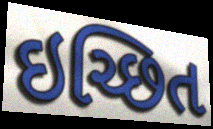
ઇચ્છિત